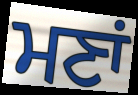
ਮਣਾਂ